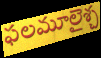
ఫలమూలైశ్చ